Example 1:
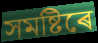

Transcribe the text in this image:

সমষ্টিৰে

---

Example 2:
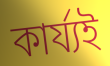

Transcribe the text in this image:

কাৰ্য্যই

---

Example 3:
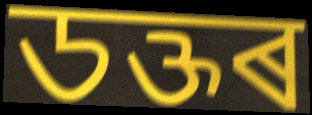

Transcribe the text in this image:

ডক্তৰ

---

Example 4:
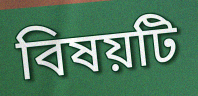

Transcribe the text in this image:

বিষয়টি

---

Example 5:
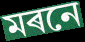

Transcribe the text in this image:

মৰনে